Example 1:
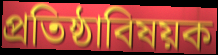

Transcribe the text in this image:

প্রতিষ্ঠাবিষয়ক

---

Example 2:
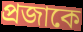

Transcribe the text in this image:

প্রজাকে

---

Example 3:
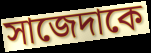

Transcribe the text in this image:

সাজেদাকে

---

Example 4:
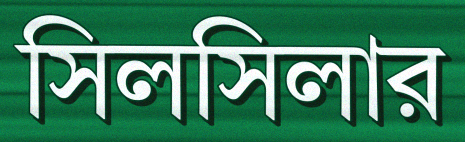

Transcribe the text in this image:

সিলসিলার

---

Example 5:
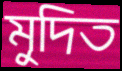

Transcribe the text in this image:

মুদিত